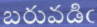
బరువడిఁ